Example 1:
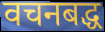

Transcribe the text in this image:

वचनबद्ध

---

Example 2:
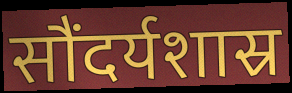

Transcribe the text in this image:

सौंदर्यशास्र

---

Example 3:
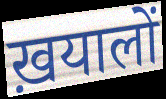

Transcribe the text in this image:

ख़यालों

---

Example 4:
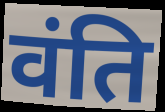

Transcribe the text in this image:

वंति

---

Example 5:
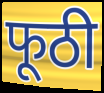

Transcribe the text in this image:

फूठी